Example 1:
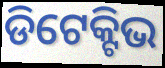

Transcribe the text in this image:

ଡିଟେକ୍ଟିଭ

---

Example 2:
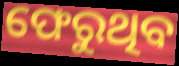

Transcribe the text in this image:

ଫେରୁଥିବ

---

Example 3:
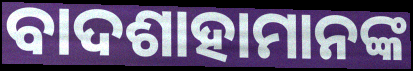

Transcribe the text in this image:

ବାଦଶାହାମାନଙ୍କ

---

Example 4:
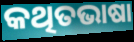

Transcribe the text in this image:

କଥିତଭାଷା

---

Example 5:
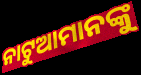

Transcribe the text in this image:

ନାଟୁଆମାନଙ୍କୁ